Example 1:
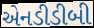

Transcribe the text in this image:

એનડીડીબી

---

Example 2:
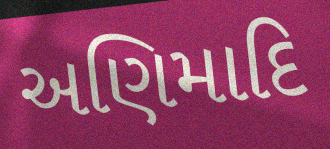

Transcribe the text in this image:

અણિમાદિ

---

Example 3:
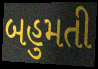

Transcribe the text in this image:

બહુમતી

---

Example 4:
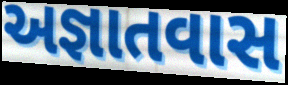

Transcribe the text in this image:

અજ્ઞાતવાસ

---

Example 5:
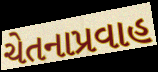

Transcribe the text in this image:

ચેતનાપ્રવાહ